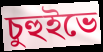
চুহুইভে